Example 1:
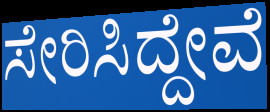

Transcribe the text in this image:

ಸೇರಿಸಿದ್ದೇವೆ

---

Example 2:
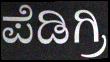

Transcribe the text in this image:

ಪೆಡಿಗ್ರಿ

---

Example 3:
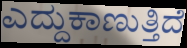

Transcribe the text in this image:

ಎದ್ದುಕಾಣುತ್ತಿದೆ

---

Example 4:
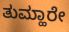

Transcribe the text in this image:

ತುಮ್ಹಾರೇ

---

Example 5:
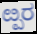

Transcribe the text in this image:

ೞ್ಪರ